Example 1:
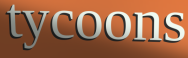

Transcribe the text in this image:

tycoons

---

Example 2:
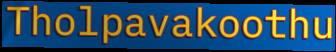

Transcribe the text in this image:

Tholpavakoothu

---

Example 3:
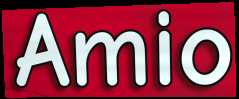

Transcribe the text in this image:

Amio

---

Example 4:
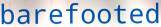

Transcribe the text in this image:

barefooted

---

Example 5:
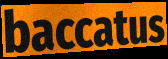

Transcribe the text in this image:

baccatus